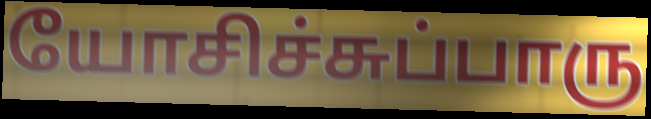
யோசிச்சுப்பாரு